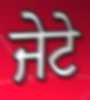
ਜੇਟੇ